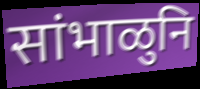
सांभाळुनि